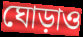
ঘোড়াও